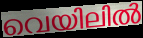
വെയിലിൽ